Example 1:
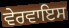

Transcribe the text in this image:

ਵੇਰਵਾਇਸ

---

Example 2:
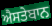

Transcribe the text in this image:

ਐਸਤੇਬਾਨ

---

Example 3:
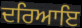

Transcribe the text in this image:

ਦਰਿਆਇ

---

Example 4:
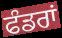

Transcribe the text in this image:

ਫੰਡਰਾਂ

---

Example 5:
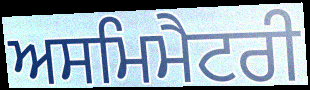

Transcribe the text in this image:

ਅਸਮਿਮੈਟਰੀ